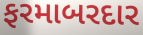
ફરમાબરદાર